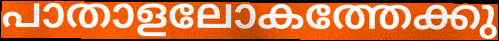
പാതാളലോകത്തേക്കു